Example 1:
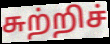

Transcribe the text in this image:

சுற்றிச்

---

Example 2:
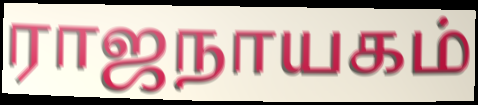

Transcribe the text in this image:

ராஜநாயகம்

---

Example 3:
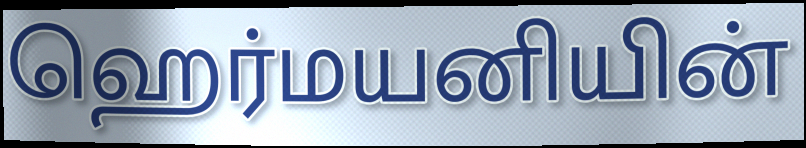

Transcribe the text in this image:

ஹெர்மயனியின்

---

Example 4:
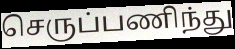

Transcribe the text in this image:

செருப்பணிந்து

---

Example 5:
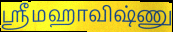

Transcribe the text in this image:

ஸ்ரீமஹாவிஷ்ணு